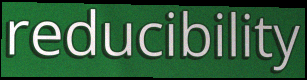
reducibility